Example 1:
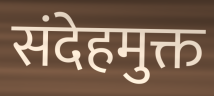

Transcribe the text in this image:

संदेहमुक्त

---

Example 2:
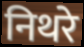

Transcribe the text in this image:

निथरे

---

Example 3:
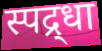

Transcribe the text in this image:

स्पद्र्धा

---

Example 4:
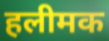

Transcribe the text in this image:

हलीमक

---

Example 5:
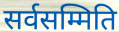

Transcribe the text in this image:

सर्वसम्मिति